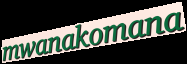
mwanakomana